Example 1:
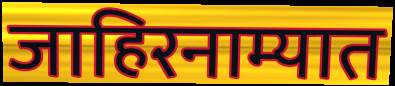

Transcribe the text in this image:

जाहिरनाम्यात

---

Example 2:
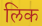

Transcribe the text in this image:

लिक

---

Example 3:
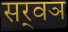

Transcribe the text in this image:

सर्वञ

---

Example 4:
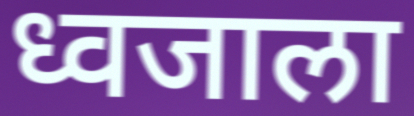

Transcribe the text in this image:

ध्वजाला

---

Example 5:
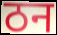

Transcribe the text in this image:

ठन